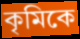
কৃমিকে